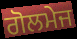
ਗੋਲਮੇਜ